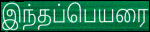
இந்தப்பெயரை